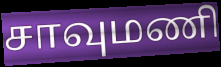
சாவுமணி